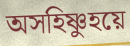
অসহিষ্ণুহয়ে